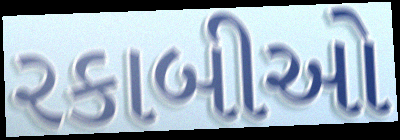
રકાબીઓ